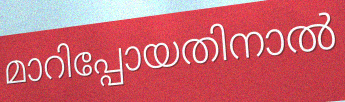
മാറിപ്പോയതിനാൽ